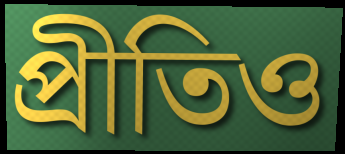
প্রীতিও